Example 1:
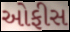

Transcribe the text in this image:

ઓફીસ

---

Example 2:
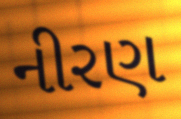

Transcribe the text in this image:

નીરણ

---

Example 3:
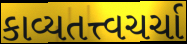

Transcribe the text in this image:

કાવ્યતત્ત્વચર્ચા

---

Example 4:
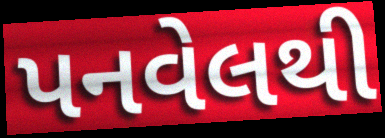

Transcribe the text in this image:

પનવેલથી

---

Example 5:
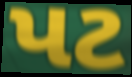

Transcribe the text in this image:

પટ